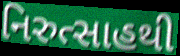
નિરુત્સાહથી